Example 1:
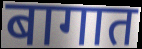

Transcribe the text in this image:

बागात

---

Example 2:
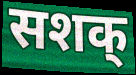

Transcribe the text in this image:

सशक्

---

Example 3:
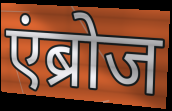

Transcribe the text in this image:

एंब्रोज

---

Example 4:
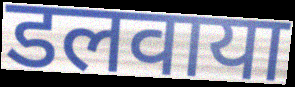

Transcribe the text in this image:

डलवाया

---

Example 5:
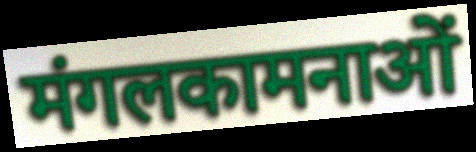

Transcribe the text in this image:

मंगलकामनाओं